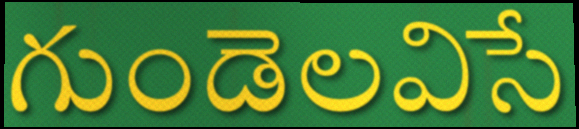
గుండెలవిసే